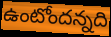
ఉంటోందన్నది